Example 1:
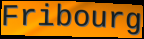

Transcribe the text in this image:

Fribourg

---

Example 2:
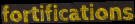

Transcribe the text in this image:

fortifications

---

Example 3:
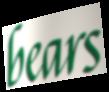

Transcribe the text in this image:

bears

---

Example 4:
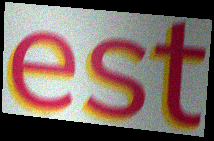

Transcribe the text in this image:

est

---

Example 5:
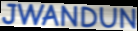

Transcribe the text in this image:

JWANDUN